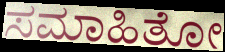
ಸಮಾಹಿತೋ